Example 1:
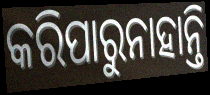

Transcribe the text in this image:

କରିପାରୁନାହାନ୍ତି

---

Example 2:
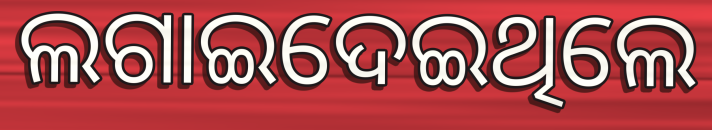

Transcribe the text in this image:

ଲଗାଇଦେଇଥିଲେ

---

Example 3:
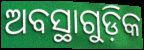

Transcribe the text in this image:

ଅବସ୍ଥାଗୁଡ଼ିକ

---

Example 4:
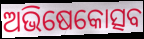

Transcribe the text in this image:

ଅଭିଷେକୋତ୍ସବ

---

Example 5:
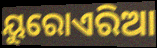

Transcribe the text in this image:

ୟୁରୋଏରିଆ